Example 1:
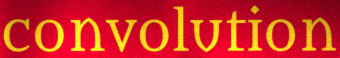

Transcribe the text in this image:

convolution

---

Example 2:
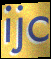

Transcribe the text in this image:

ijc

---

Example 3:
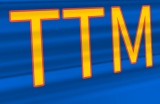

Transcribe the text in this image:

TTM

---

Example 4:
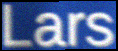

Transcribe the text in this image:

Lars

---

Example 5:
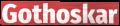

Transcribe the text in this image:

Gothoskar